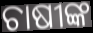
ଚାଷୀଙ୍କ